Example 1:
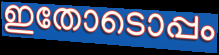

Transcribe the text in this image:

ഇതോടൊപ്പം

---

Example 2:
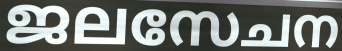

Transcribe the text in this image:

ജലസേചന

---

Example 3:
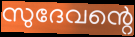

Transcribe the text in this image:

സുദേവന്റെ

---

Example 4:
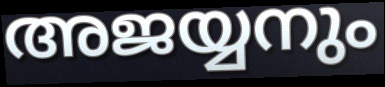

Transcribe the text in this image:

അജയ്യനും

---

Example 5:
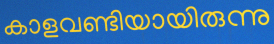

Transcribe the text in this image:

കാളവണ്ടിയായിരുന്നു